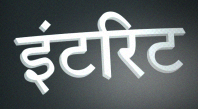
इंटरिट